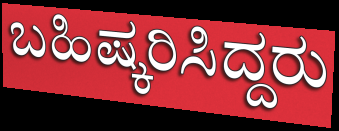
ಬಹಿಷ್ಕರಿಸಿದ್ದರು